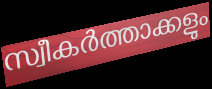
സ്വീകർത്താക്കളും